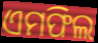
ଏମଫିଲ